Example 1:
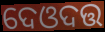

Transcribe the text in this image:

ଦେଓଦତ୍ତ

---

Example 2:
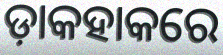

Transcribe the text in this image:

ଡ଼ାକହାକରେ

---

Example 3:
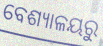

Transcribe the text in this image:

ବେଶ୍ୟାଳୟରୁ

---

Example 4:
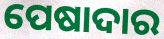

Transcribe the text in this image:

ପେଷାଦାର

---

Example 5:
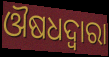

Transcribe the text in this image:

ଔଷଧଦ୍ବାରା